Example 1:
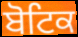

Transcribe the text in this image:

ਬੋਟਿਕ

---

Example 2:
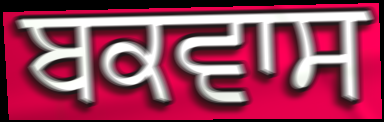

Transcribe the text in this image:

ਬਕਵਾਸ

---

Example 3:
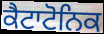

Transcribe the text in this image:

ਕੈਟਾਟੋਨਿਕ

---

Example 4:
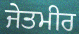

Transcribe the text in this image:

ਜੇਤਮੀਰ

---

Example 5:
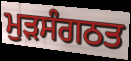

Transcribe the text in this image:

ਮੁੜਸੰਗਠਤ